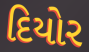
દિયોર